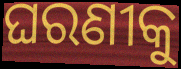
ଘରଣୀକୁ